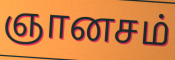
ஞானசம்